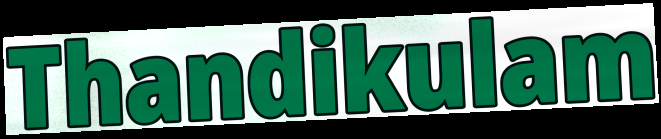
Thandikulam